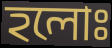
হলোঃ